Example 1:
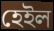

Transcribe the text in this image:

হেইল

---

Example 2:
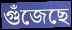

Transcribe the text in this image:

গুঁজেছে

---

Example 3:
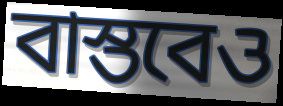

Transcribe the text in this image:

বাস্তবেও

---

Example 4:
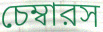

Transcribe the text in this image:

চেম্বারস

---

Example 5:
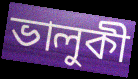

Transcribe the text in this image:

ভালুকী